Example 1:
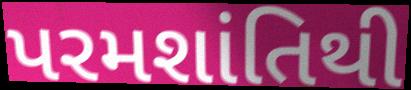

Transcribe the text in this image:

પરમશાંતિથી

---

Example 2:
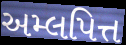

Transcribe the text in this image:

અમ્લપિત્ત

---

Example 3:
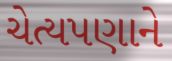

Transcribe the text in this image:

ચેત્યપણાને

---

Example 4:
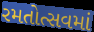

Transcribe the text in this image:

રમતોત્સવમાં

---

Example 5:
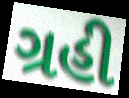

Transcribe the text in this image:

ગ્રહી